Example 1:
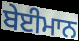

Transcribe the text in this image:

ਬੇਈਮਾਨ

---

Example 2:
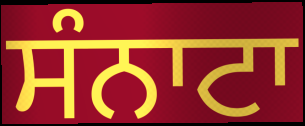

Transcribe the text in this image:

ਸੰਨਾਟਾ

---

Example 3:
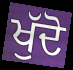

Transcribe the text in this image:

ਖੁੱਦੋ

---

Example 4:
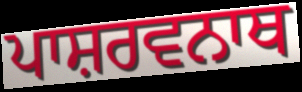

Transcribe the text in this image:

ਪਾਸ਼ਰਵਨਾਥ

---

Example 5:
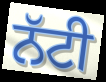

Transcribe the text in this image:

ਨੱਟੀ